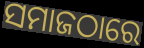
ସମାଜଠାରେ